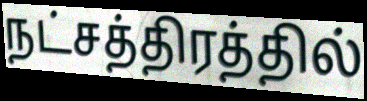
நட்சத்திரத்தில்